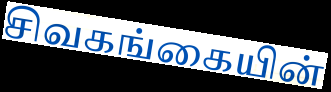
சிவகங்கையின்